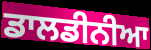
ਡਾਲਡੀਨੀਆ